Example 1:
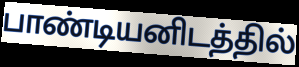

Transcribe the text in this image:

பாண்டியனிடத்தில்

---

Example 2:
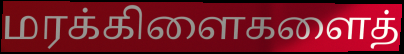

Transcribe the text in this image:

மரக்கிளைகளைத்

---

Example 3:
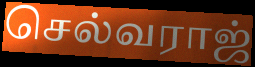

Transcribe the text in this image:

செல்வராஜ்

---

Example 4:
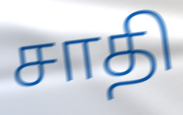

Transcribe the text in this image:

சாதி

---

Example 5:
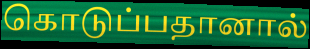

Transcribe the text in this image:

கொடுப்பதானால்